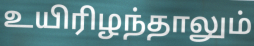
உயிரிழந்தாலும்